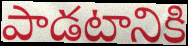
పాడటానికి